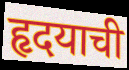
हृदयाची